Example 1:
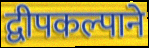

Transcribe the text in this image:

द्वीपकल्पाने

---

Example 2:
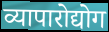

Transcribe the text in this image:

व्यापारोद्योग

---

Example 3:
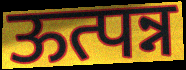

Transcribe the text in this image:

ऊत्पन्न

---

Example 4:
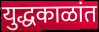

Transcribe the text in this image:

युद्धकाळांत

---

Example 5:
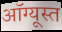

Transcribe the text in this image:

ऑग्यूस्त